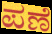
ಪಣೆ